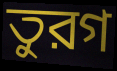
তুরগ